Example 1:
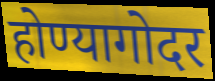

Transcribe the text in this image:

होण्यागोदर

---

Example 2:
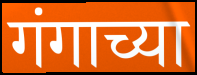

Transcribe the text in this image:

गंगाच्या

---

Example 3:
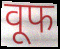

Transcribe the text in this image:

वूफ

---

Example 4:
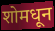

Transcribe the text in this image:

शोमधून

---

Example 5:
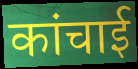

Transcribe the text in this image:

कांचाई